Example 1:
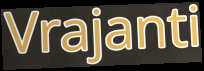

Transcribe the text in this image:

Vrajanti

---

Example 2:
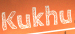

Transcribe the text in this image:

Kukhu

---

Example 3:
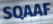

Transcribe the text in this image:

SQAAF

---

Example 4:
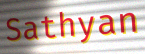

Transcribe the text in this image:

Sathyan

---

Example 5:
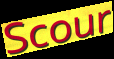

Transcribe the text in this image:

Scour